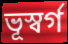
ভূস্বর্গ